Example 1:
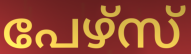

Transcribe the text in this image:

പേഴ്സ്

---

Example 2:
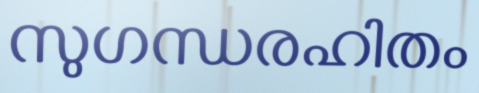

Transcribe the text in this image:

സുഗന്ധരഹിതം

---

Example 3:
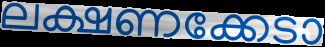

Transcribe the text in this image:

ലക്ഷണക്കേടാ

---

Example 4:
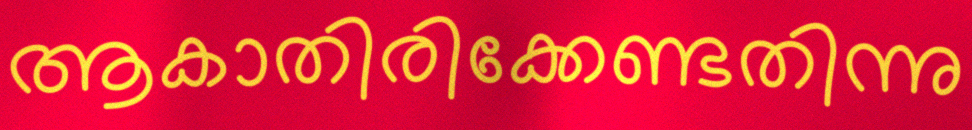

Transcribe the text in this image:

ആകാതിരിക്കേണ്ടതിന്നു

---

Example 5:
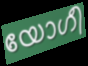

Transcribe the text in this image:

യോഗീ